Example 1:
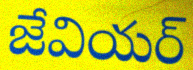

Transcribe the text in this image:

జేవియర్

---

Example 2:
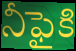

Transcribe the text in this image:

నీఫైకి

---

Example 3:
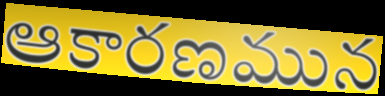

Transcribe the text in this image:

ఆకారణమున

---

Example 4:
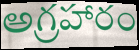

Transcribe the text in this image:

అగ్రహారం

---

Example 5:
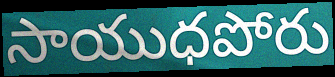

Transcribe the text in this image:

సాయుధపోరు